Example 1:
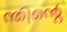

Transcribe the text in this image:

ന്തിന്റെ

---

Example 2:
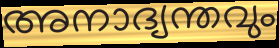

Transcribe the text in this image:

അനാദ്യന്തവും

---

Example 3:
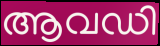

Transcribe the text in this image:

ആവഡി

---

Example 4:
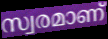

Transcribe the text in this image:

സ്വരമാണ്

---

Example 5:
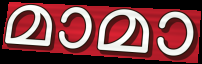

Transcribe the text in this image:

മാമാ